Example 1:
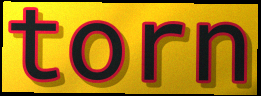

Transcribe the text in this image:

torn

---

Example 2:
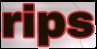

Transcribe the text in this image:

rips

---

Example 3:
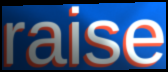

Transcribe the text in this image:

raise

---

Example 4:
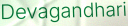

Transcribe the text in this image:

Devagandhari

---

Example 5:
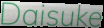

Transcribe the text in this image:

Daisuke